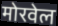
मोरवेल